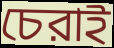
চেরাই